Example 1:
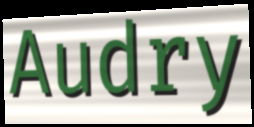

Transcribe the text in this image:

Audry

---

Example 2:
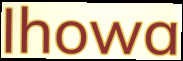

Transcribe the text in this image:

Ihowa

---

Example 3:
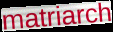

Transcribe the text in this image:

matriarch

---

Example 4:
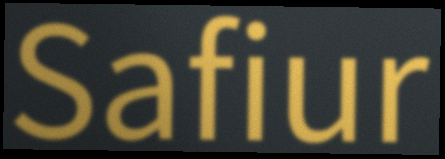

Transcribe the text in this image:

Safiur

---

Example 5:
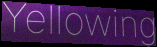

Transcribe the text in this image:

Yellowing